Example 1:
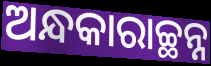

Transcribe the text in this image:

ଅନ୍ଧକାରାଚ୍ଛନ୍ନ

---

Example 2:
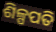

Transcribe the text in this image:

ଶିଳ୍ପପତି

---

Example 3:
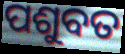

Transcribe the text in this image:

ପଶୁବତ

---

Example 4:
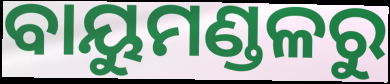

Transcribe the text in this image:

ବାୟୁମଣ୍ଡଳରୁ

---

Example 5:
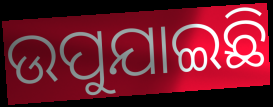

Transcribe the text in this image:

ଉପୁଯାଇଛି